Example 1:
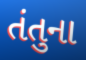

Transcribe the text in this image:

તંતુના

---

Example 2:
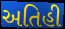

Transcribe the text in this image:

અતિહી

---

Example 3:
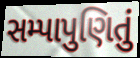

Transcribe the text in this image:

સમ્પાપુણિતું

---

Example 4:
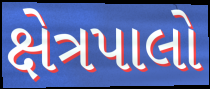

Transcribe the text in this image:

ક્ષેત્રપાલો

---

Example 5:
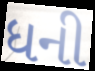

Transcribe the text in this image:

ધની